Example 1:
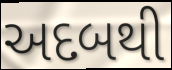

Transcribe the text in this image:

અદબથી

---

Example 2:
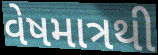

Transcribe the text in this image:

વેષમાત્રથી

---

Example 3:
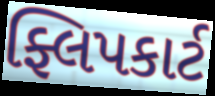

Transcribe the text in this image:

ફ્લિપકાર્ટ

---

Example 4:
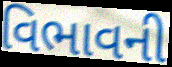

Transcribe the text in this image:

વિભાવની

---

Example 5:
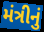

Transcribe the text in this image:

મંત્રીનું